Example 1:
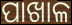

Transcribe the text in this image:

ପାଖାଳ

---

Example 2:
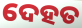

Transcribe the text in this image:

ଦେହତ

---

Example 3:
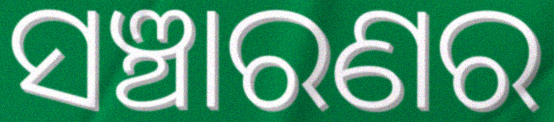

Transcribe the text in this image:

ସଞ୍ଚାରଣର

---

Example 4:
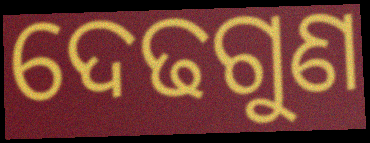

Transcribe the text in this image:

ଦେଢଗୁଣ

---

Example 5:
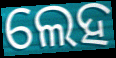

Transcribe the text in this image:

ଲେହ